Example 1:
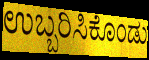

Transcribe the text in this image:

ಉಬ್ಬರಿಸಿಕೊಂಡು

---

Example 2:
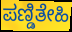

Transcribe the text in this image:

ಪಣ್ಡಿತೇಹಿ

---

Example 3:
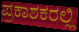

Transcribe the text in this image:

ಪ್ರಕಾಶಕರಲ್ಲಿ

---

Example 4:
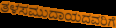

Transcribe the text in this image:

ತಳಸಮುದಾಯದವರಿಗೆ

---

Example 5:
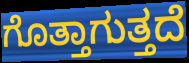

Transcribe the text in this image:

ಗೊತ್ತಾಗುತ್ತದೆ